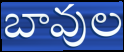
బావుల